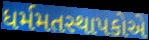
ધર્મમતસ્થાપકોએ